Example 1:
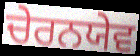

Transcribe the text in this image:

ਚੇਰਨਯੇਵ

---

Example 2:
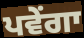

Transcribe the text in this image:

ਪਵੇਂਗਾ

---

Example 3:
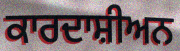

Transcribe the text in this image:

ਕਾਰਦਾਸ਼ੀਅਨ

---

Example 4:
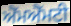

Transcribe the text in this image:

ਐੱਮਐੱਮਟੀ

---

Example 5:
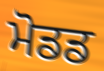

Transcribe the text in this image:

ਮੋਡਡ